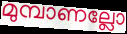
മുമ്പാണല്ലോ